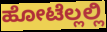
ಹೋಟೆಲ್ಲಲ್ಲಿ